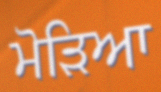
ਮੋੜਿਆ